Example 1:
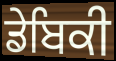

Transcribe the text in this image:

ਡੇਬਿਕੀ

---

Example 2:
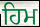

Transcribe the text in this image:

ਹਿਮ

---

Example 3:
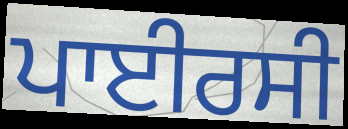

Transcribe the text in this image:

ਪਾਈਰਸੀ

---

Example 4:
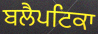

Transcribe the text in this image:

ਬਲੈਪਟਿਕਾ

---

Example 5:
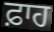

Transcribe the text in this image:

ਫ਼ਾਹ